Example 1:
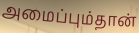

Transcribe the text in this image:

அமைப்பும்தான்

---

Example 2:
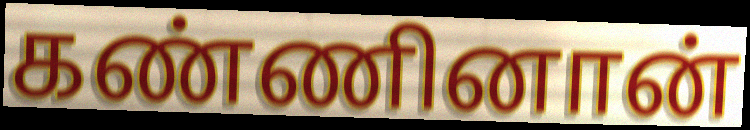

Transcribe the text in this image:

கண்ணினான்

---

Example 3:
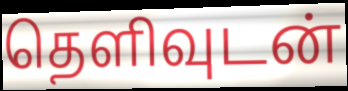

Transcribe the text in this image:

தெளிவுடன்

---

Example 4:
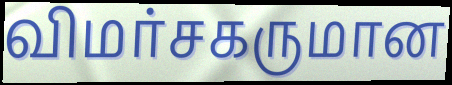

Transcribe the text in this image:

விமர்சகருமான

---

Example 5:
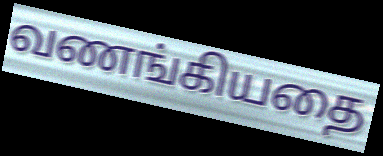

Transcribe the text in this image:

வணங்கியதை